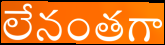
లేనంతగా